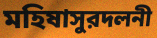
মহিষাসুরদলনী